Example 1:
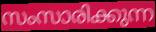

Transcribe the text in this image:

സംസാരിക്കുന്ന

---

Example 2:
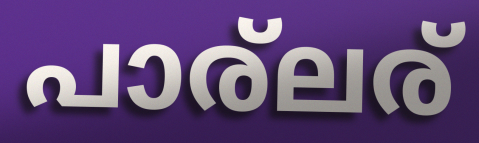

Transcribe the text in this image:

പാര്ലര്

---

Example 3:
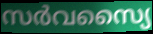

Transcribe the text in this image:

സർവസ്യൈ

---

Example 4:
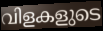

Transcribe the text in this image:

വിളകളുടെ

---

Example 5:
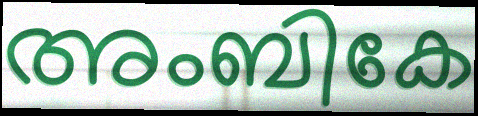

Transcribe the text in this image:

അംബികേ